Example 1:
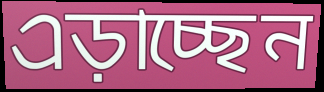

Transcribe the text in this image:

এড়াচ্ছেন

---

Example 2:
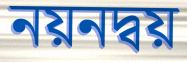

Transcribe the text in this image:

নয়নদ্বয়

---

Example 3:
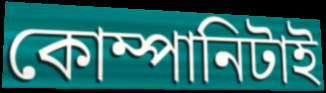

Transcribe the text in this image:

কোম্পানিটাই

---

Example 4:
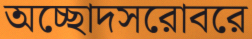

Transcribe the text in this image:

অচ্ছোদসরোবরে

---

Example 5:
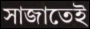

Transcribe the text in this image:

সাজাতেই